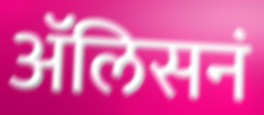
ॲलिसनं